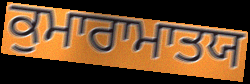
ਕੁਮਾਰਾਮਾਤਯ